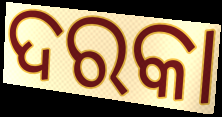
ଦରକା